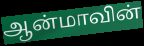
ஆன்மாவின்